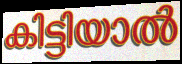
കിട്ടിയാൽ